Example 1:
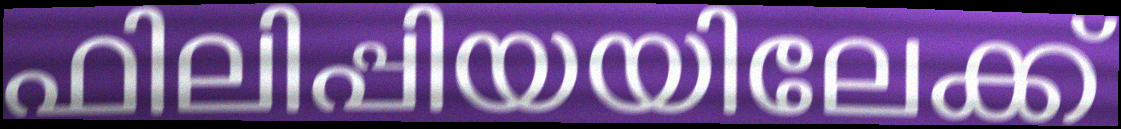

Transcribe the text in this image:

ഫിലിപ്പിയയിലേക്ക്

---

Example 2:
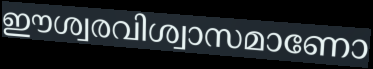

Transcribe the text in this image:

ഈശ്വരവിശ്വാസമാണോ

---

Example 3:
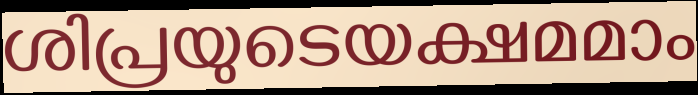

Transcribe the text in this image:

ശിപ്രയുടെയക്ഷമമാം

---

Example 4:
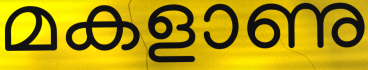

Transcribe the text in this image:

മകളാണു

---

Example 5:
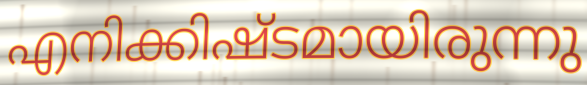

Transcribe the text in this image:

എനിക്കിഷ്ടമായിരുന്നു